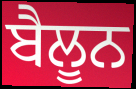
ਬੈਲੂਨ